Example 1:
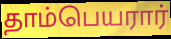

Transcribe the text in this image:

தாம்பெயரார்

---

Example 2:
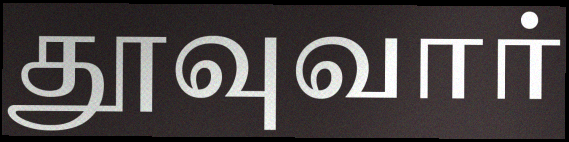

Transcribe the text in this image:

தூவுவார்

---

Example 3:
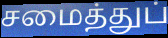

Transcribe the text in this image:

சமைத்துப்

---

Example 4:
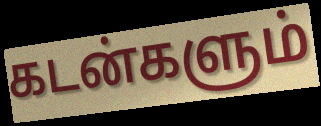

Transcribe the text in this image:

கடன்களும்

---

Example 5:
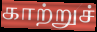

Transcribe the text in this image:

காற்றுச்